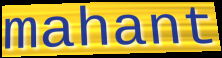
mahant